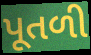
પૂતળી